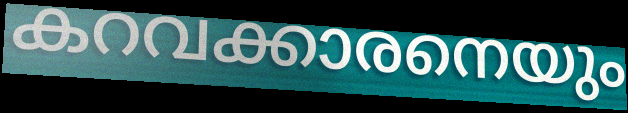
കറവക്കാരനെയും